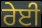
ਰੇਈ